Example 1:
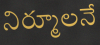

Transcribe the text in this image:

నిర్మూలనే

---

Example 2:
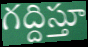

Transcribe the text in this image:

గద్దిస్తూ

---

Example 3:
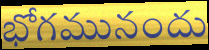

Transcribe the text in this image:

భోగమునందు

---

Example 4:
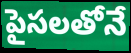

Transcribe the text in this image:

పైసలతోనే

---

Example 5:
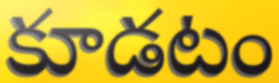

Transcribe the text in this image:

కూడటం